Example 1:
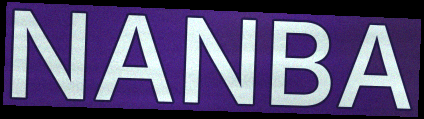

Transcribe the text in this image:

NANBA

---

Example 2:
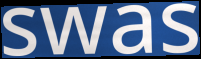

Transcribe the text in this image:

swas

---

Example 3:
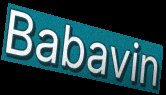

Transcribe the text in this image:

Babavin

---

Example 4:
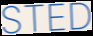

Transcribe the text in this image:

STED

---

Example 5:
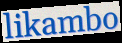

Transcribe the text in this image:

likambo